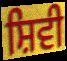
ਸ਼ਿਵੀ